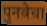
पुनवेचा